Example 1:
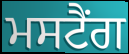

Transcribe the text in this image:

ਮਸਟੈਂਗ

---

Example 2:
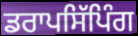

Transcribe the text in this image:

ਡਰਾਪਸਿੱਪਿੰਗ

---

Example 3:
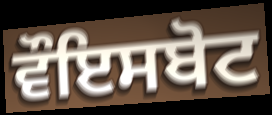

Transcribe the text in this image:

ਵੌਇਸਬੋਟ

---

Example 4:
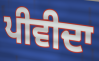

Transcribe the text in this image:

ਪੀਵੀਦਾ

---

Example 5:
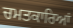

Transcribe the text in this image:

ਚਮਤਕਾਰਿਆਂ